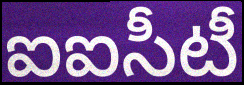
ఐఐసీటీ